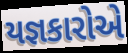
યજ્ઞકારોએ